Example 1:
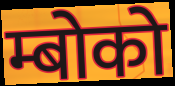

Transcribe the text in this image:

म्बोको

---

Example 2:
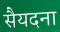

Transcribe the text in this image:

सैयदना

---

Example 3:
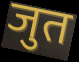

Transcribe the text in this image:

जुत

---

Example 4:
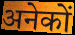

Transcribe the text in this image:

अनेकों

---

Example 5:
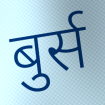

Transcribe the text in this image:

बुर्स